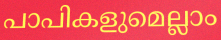
പാപികളുമെല്ലാം